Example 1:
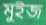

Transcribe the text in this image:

মুইজ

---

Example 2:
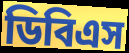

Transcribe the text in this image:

ডিবিএস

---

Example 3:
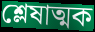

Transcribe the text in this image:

শ্লেষাত্মক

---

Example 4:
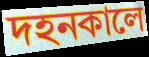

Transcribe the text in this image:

দহনকালে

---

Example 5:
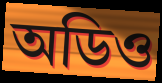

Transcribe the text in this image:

অডিও